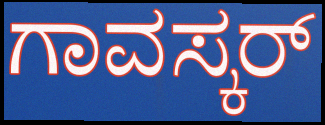
ಗಾವಸ್ಕರ್